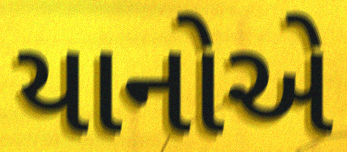
યાનોએ